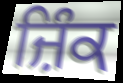
ਜ਼ਿੰਕ